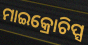
ମାଇକ୍ରୋଚିପ୍ସ